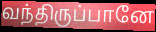
வந்திருப்பானே